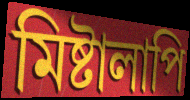
মিষ্টালাপি